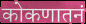
कोकणातनं